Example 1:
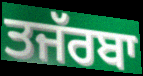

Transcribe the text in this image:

ਤਜੱਰਬਾ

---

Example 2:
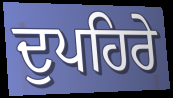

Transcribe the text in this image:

ਦੁਪਹਿਰੇ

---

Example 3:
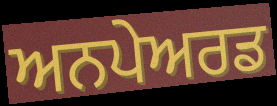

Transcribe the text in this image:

ਅਨਪੇਅਰਡ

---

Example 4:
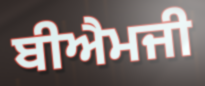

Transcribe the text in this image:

ਬੀਐਮਜੀ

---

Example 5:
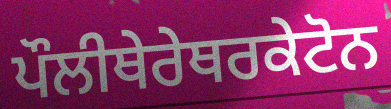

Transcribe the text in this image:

ਪੌਲੀਥੇਰੇਥਰਕੇਟੋਨ